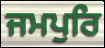
ਜਮਪੁਰਿ